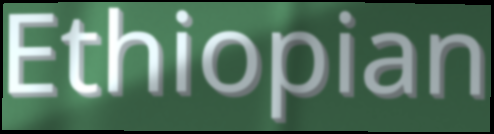
Ethiopian